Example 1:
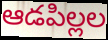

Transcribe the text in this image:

ఆడపిల్లల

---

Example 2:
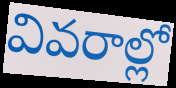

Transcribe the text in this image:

వివరాల్లో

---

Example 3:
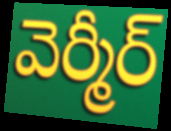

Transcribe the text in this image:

వెర్మీర్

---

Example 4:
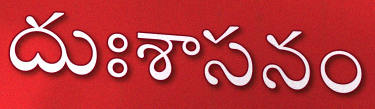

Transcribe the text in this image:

దుఃశాసనం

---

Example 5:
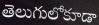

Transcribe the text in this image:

తెలుగులోకూడా